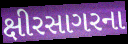
ક્ષીરસાગરના